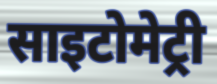
साइटोमेट्री